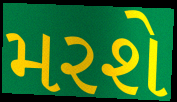
મરશે